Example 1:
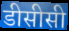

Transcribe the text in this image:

डीसीसी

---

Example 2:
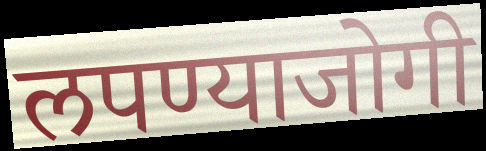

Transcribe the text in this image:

लपण्याजोगी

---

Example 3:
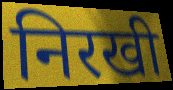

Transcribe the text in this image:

निरखी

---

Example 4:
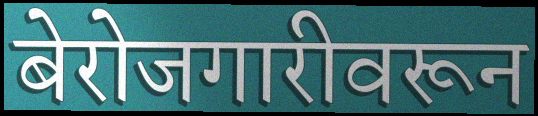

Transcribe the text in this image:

बेरोजगारीवरून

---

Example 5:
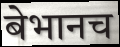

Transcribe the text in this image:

बेभानच